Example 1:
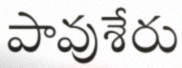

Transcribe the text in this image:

పావుశేరు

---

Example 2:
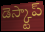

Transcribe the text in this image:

డెస్క్టాప్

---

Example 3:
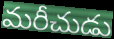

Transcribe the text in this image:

మరీచుడు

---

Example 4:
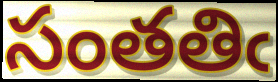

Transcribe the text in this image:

సంతతిఁ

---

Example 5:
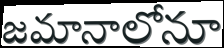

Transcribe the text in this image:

జమానాలోనూ